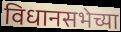
विधानसभेच्या